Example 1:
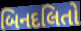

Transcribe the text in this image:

બિનદલિતો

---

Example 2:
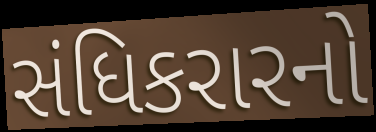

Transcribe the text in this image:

સંધિકરારનો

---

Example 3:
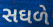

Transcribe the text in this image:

સઘળે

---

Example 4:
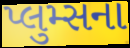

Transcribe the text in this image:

પ્લુમ્સના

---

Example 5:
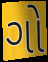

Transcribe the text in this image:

ગો